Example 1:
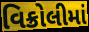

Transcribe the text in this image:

વિક્રોલીમાં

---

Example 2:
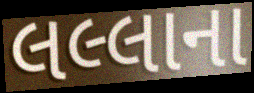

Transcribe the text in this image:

લલ્લાના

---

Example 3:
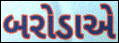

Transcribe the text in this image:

બરોડાએ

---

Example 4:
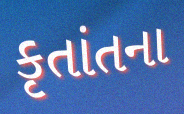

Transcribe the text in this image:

કૃતાંતના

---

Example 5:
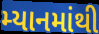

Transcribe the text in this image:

મ્યાનમાંથી